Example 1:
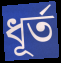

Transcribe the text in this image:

ধূৰ্ত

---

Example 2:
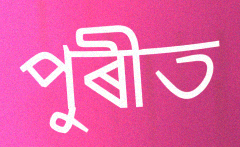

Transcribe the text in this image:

পুৰীত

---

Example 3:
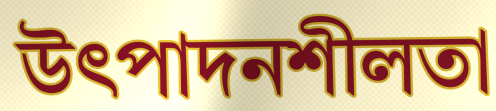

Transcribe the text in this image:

উৎপাদনশীলতা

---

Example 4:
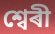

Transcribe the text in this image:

শ্বেৰী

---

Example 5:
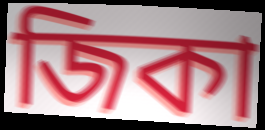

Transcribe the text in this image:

জিকা